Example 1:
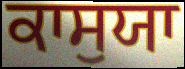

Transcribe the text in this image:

ਕਾਸੁਯਾ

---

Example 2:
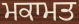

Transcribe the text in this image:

ਮਕਾਮਤ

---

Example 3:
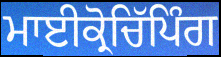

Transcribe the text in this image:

ਮਾਈਕ੍ਰੋਚਿੱਪਿੰਗ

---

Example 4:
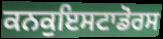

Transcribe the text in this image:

ਕਨਕੁਇਸਟਾਡੋਰਸ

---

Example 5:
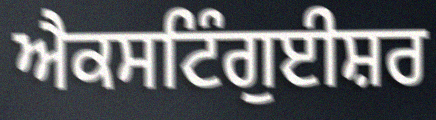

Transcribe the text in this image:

ਐਕਸਟਿੰਗੁਈਸ਼ਰ